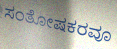
ಸಂತೋಷಕರವೂ